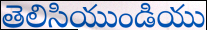
తెలిసియుండియు